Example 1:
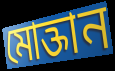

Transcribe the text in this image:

মোক্তান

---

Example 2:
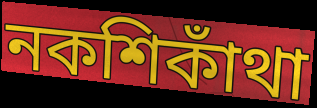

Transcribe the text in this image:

নকশিকাঁথা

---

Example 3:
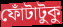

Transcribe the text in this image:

ফোঁটাটুকু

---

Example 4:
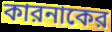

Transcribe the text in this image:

কারনাকের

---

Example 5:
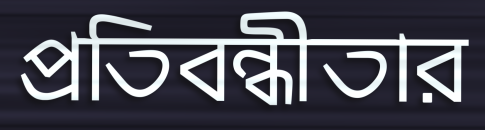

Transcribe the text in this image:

প্রতিবন্ধীতার